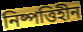
নিষ্পত্তিহীন